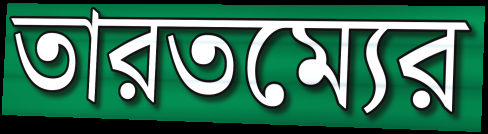
তারতম্যের